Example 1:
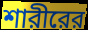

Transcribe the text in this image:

শারীরের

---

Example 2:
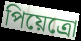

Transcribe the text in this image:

পিয়েত্রো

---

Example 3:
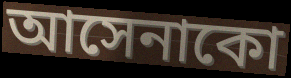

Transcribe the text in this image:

আসেনাকো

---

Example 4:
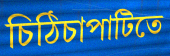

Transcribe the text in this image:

চিঠিচাপাটিতে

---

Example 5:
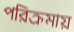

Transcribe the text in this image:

পরিক্রমায়